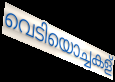
വെടിയൊച്ചകള്